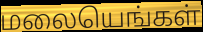
மலையெங்கள்